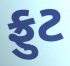
ફ્રુટ